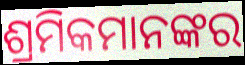
ଶ୍ରମିକମାନଙ୍କର